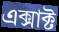
এক্সাক্ট